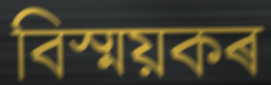
বিস্ময়কৰ